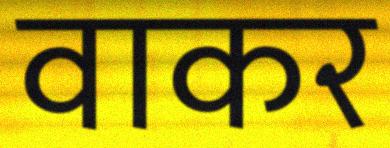
वाकर